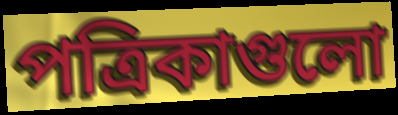
পত্রিকাগুলো